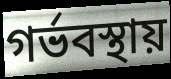
গর্ভবস্থায়